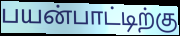
பயன்பாட்டிற்கு